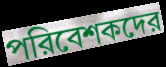
পরিবেশকদের